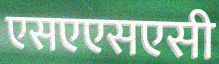
एसएएसएसी